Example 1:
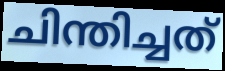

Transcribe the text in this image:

ചിന്തിച്ചത്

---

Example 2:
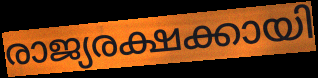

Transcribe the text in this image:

രാജ്യരക്ഷക്കായി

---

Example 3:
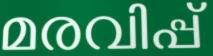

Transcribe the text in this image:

മരവിപ്പ്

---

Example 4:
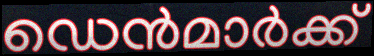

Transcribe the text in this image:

ഡെൻമാർക്ക്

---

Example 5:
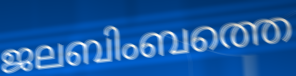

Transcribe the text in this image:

ജലബിംബത്തെ